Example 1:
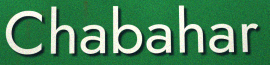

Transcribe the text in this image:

Chabahar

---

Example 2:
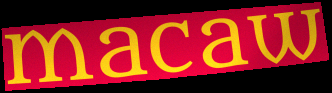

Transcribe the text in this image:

macaw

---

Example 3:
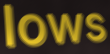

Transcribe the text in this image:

lows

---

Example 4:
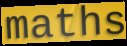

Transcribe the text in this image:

maths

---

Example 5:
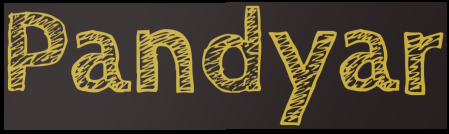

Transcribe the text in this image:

Pandyar